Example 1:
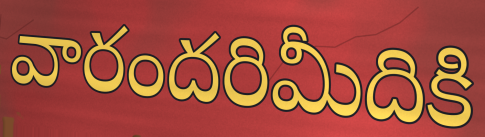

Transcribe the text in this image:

వారందరిమీదికి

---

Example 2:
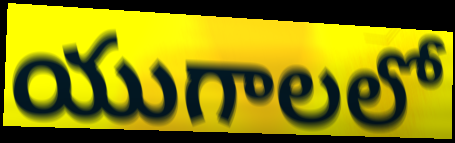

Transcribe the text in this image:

యుగాలలో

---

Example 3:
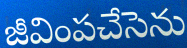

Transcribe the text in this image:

జీవింపచేసెను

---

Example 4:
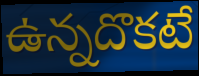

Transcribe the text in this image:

ఉన్నదొకటే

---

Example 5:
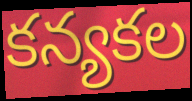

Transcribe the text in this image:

కన్యకల